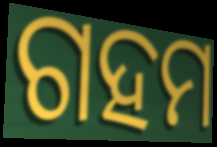
ଗହମ